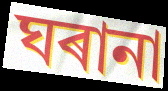
ঘৰানা